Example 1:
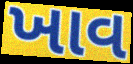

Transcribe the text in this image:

ખાવ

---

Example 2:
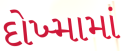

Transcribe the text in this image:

દોખ્મામાં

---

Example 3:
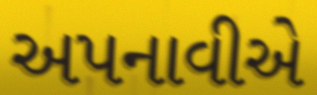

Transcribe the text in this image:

અપનાવીએ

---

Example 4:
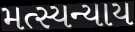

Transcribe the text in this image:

મત્સ્યન્યાય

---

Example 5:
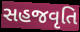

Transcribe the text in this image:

સહજવૃતિ